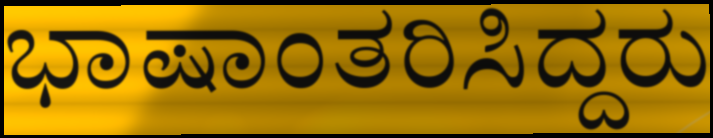
ಭಾಷಾಂತರಿಸಿದ್ದರು